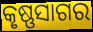
କୃଷ୍ଣସାଗର